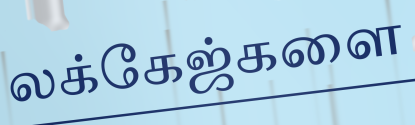
லக்கேஜ்களை